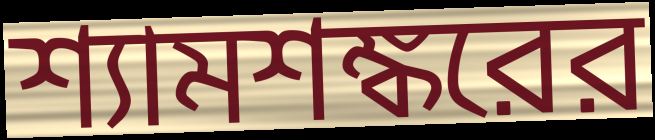
শ্যামশঙ্করের